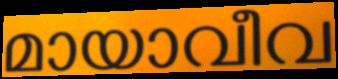
മായാവീവ